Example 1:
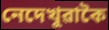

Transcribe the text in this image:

নেদেখুৱাকৈ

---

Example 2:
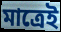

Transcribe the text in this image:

মাত্ৰেই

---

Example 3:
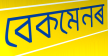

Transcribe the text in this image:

বেকমেনৰ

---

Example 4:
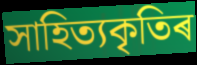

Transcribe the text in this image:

সাহিত্যকৃতিৰ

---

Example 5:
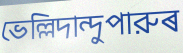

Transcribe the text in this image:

ভেল্লিদান্দুপাৰুৰ